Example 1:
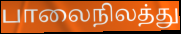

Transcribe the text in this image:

பாலைநிலத்து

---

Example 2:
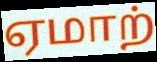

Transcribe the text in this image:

ஏமாற்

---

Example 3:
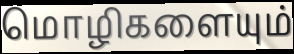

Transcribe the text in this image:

மொழிகளையும்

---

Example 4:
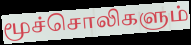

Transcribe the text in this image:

மூச்சொலிகளும்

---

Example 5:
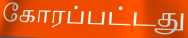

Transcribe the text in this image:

கோரப்பட்டது